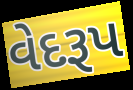
વેદરૂપ